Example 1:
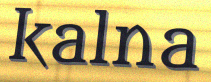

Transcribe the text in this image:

kalna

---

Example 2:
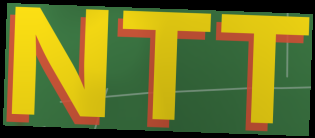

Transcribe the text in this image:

NTT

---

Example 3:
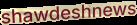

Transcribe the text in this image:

shawdeshnews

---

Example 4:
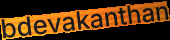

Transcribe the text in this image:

bdevakanthan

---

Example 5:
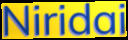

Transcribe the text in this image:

Niridai